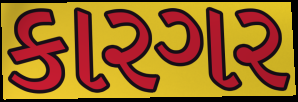
કારગર